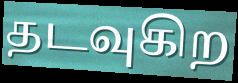
தடவுகிற